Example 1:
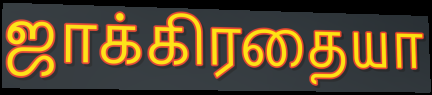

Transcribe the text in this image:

ஜாக்கிரதையா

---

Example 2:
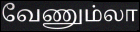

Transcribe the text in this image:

வேணும்லா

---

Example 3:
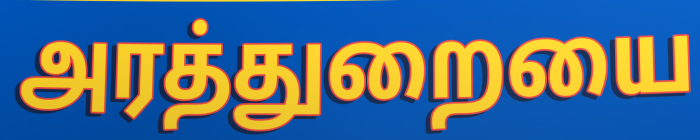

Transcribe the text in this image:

அரத்துறையை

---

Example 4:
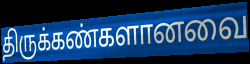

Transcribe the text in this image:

திருக்கண்களானவை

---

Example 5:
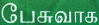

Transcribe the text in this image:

பேசுவாக